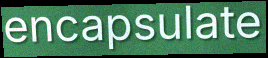
encapsulate